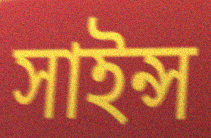
সাইন্স